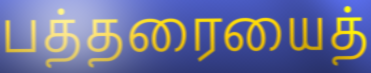
பத்தரையைத்